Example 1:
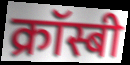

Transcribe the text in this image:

क्रॉस्बी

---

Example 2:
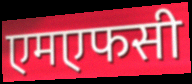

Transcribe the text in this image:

एमएफसी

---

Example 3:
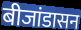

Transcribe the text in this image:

बीजांडासन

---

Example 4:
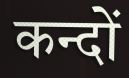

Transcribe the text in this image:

कन्दों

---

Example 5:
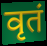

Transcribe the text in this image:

वृतं